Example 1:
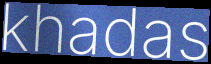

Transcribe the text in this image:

khadas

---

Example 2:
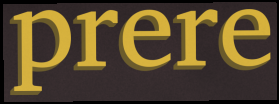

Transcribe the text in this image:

prere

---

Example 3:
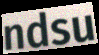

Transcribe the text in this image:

ndsu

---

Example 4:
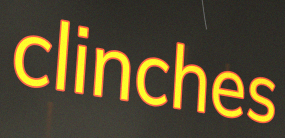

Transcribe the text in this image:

clinches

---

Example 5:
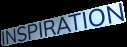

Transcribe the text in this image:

INSPIRATION